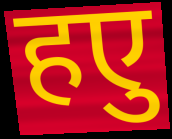
हएु